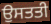
ਉਸਤਤੀ